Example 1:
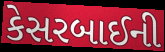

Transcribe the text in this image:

કેસરબાઈની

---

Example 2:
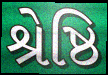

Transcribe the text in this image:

શ્રેષ્ઠિ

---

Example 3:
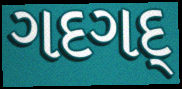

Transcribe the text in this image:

ગદગદ્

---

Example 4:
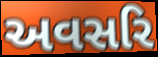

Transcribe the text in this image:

અવસરિ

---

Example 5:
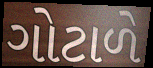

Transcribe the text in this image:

ગોટાળે